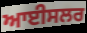
ਆਈਸਲਰ